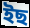
ইছ